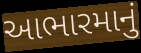
આભારમાનું